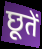
छूतें